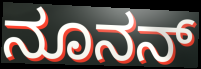
ನೂನನ್